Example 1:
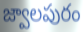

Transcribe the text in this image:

జ్వాలపురం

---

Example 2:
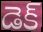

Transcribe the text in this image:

డెక్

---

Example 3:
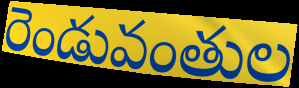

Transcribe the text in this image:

రెండువంతుల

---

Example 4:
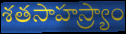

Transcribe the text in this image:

శతసాహస్ర్యాం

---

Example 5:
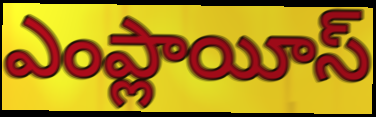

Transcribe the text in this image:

ఎంప్లాయీస్